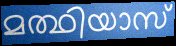
മത്ഥിയാസ്